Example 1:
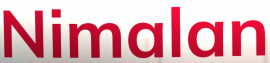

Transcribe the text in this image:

Nimalan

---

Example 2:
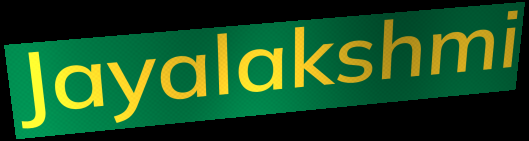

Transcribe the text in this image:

Jayalakshmi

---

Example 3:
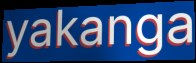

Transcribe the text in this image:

yakanga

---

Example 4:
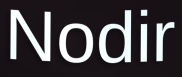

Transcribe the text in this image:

Nodir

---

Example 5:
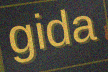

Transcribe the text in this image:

gida